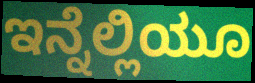
ಇನ್ನೆಲ್ಲಿಯೂ